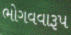
ભોગવવારૂપ